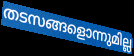
തടസങ്ങളൊന്നുമില്ല